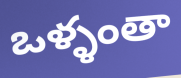
ఒళ్ళంతా